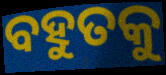
ବହୁତକୁ